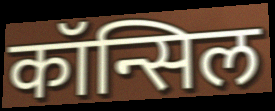
कॉन्सिल